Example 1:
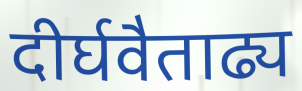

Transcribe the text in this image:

दीर्घवैताढ्य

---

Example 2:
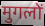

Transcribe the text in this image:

मुगलों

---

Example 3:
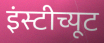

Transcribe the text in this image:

इंस्‍टीच्‍यूट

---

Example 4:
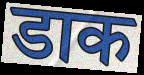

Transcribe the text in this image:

डाक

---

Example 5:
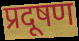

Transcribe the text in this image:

प्रदूषण